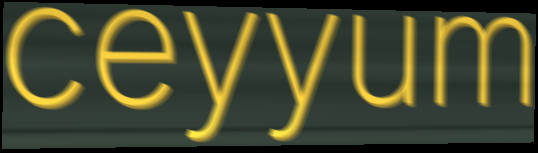
ceyyum